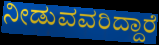
ನೀಡುವವರಿದ್ದಾರೆ